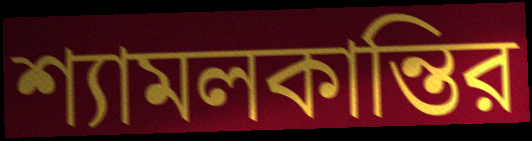
শ্যামলকান্তির